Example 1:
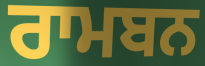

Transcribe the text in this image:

ਰਾਮਬਨ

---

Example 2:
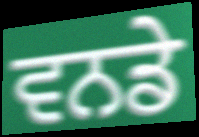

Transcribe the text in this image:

ਵਨਡੇ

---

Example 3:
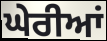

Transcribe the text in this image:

ਘੇਰੀਆਂ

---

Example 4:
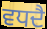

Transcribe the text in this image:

ਵਧਦੈ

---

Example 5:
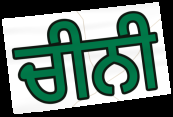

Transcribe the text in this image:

ਚੀਨੀ